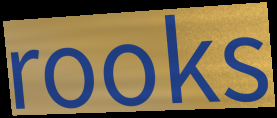
rooks